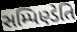
સમ્પિણ્ડેતિ